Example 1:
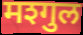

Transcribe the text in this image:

मश्गुल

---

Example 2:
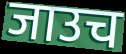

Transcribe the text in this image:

जाउच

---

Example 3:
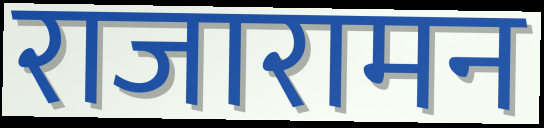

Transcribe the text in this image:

राजारामन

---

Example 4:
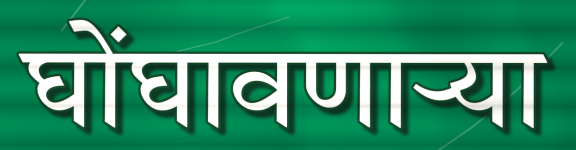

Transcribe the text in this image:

घोंघावणाऱ्या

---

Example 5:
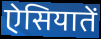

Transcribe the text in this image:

ऐसियातें